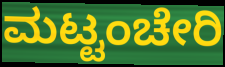
ಮಟ್ಟಂಚೇರಿ